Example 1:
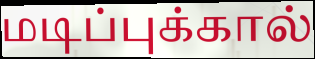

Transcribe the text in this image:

மடிப்புக்கால்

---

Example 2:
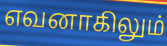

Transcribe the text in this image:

எவனாகிலும்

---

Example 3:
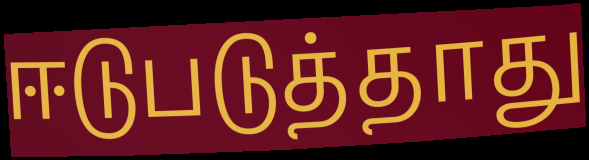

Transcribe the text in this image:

ஈடுபடுத்தாது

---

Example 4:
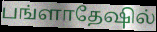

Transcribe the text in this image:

பங்ளாதேஷில்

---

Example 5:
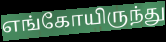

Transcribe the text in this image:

எங்கோயிருந்து